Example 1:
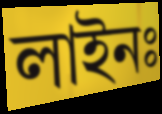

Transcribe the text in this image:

লাইনঃ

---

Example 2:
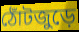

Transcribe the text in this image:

ঠোঁটজুড়ে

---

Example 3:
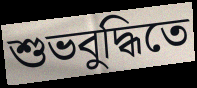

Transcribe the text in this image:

শুভবুদ্ধিতে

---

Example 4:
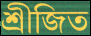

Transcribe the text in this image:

শ্রীজিত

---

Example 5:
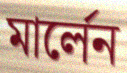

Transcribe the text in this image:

মার্লেন